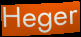
Heger